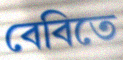
বেবিতে